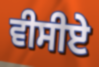
ਵੀਸੀਏ